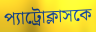
প্যাট্রোক্লাসকে